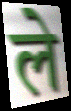
ले